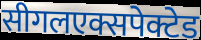
सीगलएक्सपेक्टेड